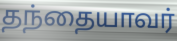
தந்தையாவர்